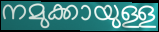
നമുക്കായുള്ള